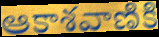
ఆకాశవాణికి